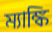
ম্যাঙ্কি